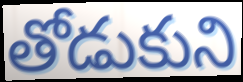
తోడుకుని